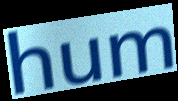
hum